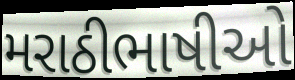
મરાઠીભાષીઓ